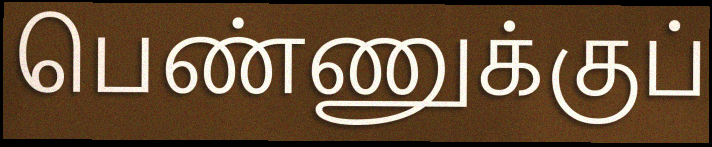
பெண்ணுக்குப்